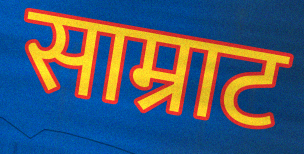
साम्राट